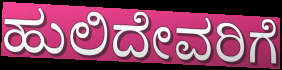
ಹುಲಿದೇವರಿಗೆ